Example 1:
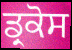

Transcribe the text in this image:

ਡ੍ਰਕੋਸ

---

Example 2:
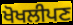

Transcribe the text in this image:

ਖੋਖਲੀਪਣ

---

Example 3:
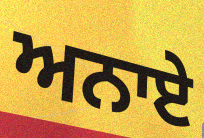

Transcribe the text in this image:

ਅਨਾਏ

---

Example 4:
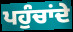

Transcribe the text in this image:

ਪਹੁੰਚਾਂਦੇ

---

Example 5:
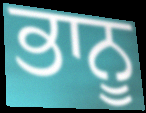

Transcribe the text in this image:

ਭਾਨੂ